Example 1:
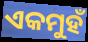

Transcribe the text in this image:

ଏକମୁହଁ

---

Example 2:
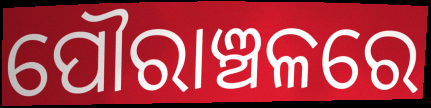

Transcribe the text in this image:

ପୌରାଞ୍ଚଳରେ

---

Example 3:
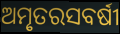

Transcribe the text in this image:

ଅମୃତରସବର୍ଷୀ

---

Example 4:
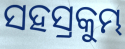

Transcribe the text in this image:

ସହସ୍ରକୁମ୍ଭ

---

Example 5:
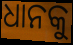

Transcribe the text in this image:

ଧାନକୁ